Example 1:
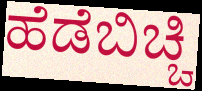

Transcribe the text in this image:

ಹೆಡೆಬಿಚ್ಚಿ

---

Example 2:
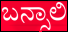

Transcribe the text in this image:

ಬನ್ಸಾಲಿ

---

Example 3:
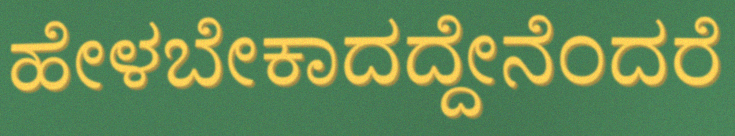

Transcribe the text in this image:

ಹೇಳಬೇಕಾದದ್ದೇನೆಂದರೆ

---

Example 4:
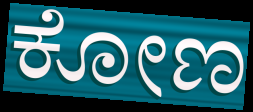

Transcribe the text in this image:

ಕೋಣ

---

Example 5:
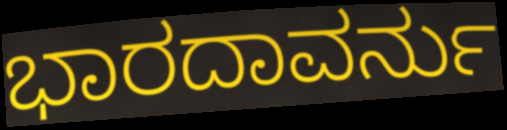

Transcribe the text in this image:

ಭಾರದಾವರ್ನು